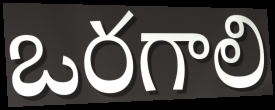
ఒరగాలి